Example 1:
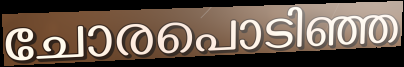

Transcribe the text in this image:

ചോരപൊടിഞ്ഞ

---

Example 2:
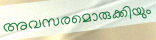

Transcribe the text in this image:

അവസരമൊരുക്കിയും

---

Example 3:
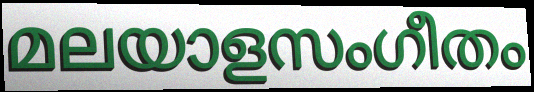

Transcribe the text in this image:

മലയാളസംഗീതം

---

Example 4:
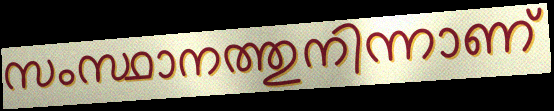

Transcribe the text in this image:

സംസ്ഥാനത്തുനിന്നാണ്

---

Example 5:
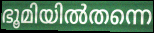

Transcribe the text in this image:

ഭൂമിയിൽതന്നെ